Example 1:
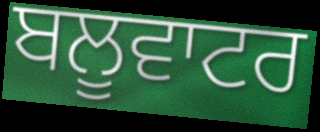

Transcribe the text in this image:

ਬਲੂਵਾਟਰ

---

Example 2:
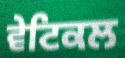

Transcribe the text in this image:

ਵੇਟਿਕਲ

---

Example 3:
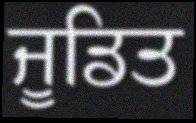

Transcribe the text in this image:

ਜੂਡਿਤ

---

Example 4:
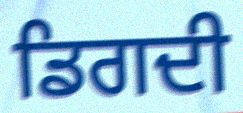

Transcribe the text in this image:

ਡਿਗਦੀ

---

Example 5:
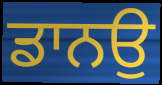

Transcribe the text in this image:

ਡਾਨਉ